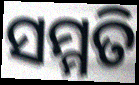
ସମ୍ମତି